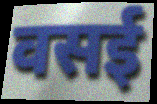
वसई